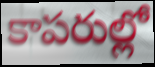
కాపరుల్లో